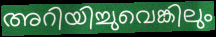
അറിയിച്ചുവെങ്കിലും